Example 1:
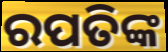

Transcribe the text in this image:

ରପତିଙ୍କ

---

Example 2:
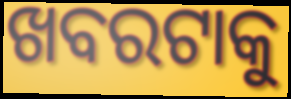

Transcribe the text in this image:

ଖବରଟାକୁ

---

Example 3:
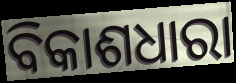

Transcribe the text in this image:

ବିକାଶଧାରା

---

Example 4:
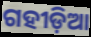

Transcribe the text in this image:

ଗହୀଡ଼ିଆ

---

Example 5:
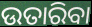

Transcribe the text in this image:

ଉତାରିବା